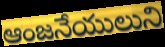
ఆంజనేయులుని